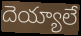
దెయ్యాలే